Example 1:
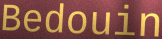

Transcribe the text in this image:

Bedouin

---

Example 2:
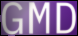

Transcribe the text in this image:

GMD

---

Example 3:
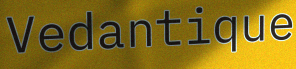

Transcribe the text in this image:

Vedantique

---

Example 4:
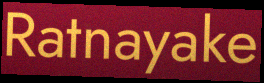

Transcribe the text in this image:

Ratnayake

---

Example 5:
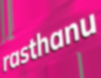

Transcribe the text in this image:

rasthanu